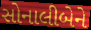
સોનાલીબેને